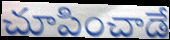
చూపించాడే